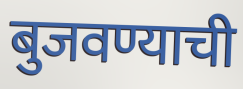
बुजवण्याची